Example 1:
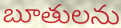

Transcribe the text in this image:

బూతులను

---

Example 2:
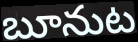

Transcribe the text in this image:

బూనుట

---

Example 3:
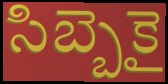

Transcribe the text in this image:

సిబ్బెకై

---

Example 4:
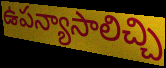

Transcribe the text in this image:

ఉపన్యాసాలిచ్చి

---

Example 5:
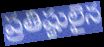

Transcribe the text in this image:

ప్రతిష్ఠులైన